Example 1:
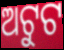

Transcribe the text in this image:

ଅଟୁଟ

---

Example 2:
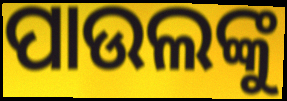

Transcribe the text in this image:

ପାଉଲଙ୍କୁ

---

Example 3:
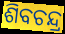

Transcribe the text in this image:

ଶିବଚନ୍ଦ୍ର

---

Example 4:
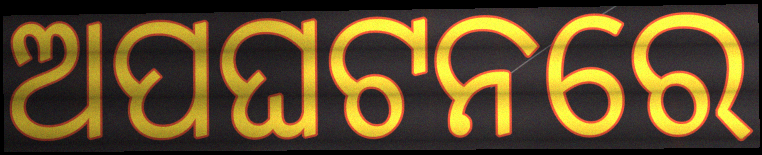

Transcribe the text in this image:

ଅପଘଟନରେ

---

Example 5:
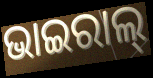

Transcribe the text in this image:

ଭାଇରାଲ୍